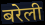
बरेली